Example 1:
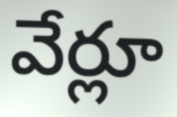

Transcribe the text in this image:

వేర్లూ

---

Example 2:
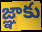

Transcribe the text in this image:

జ్ఞాకు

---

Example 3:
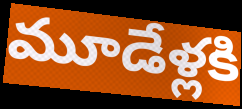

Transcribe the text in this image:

మూడేళ్లకి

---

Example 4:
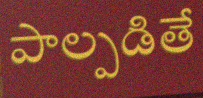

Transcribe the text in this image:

పాల్పడితే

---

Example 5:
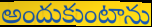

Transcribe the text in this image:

అందుకుంటాను